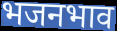
भजनभाव